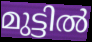
മുട്ടിൽ